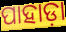
ପାହାଡ଼ା